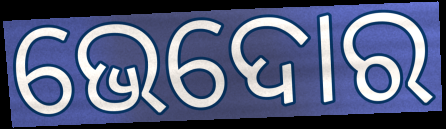
ଭେଦୋର